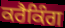
ਕਰੈਕਿੰਗ